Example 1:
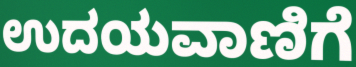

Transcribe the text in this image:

ಉದಯವಾಣಿಗೆ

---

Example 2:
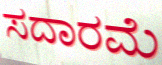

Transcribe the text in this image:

ಸದಾರಮೆ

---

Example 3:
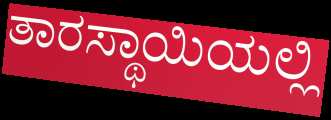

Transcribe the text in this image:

ತಾರಸ್ಥಾಯಿಯಲ್ಲಿ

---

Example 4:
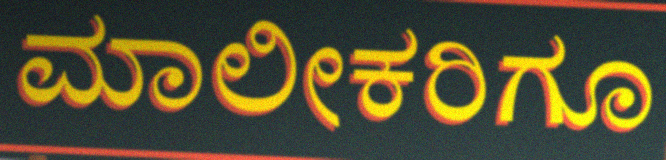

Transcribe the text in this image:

ಮಾಲೀಕರಿಗೂ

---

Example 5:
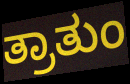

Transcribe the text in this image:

ತ್ರಾತುಂ